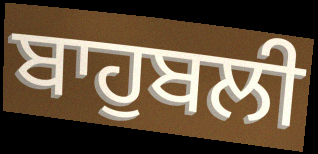
ਬਾਹੁਬਲੀ